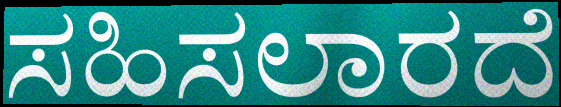
ಸಹಿಸಲಾರದೆ